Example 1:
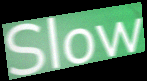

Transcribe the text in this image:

Slow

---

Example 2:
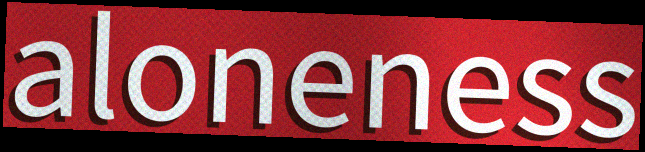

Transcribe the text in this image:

aloneness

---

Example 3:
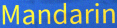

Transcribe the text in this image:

Mandarin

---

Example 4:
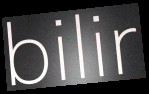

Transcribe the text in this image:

bilir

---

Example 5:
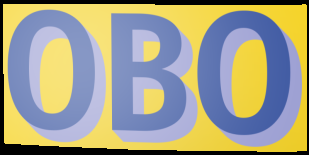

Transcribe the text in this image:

OBO